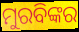
ମୁରବିଙ୍କର